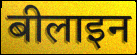
बीलाइन